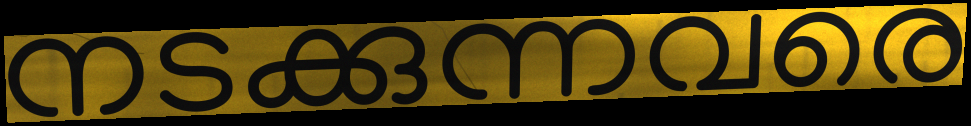
നടക്കുന്നവരെ